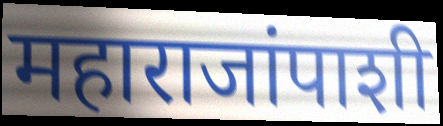
महाराजांपाशी